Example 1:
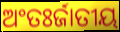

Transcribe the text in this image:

ଅଂତଃର୍ଜାତୀୟ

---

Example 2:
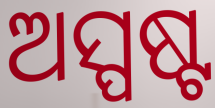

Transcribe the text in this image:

ଅସ୍ପଷ୍ଟ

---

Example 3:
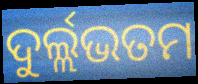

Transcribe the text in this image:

ଦୁର୍ଲ୍ଲଭତମ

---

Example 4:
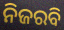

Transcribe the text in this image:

ନିଜରବି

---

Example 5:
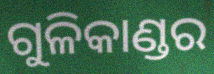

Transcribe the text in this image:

ଗୁଳିକାଣ୍ଡର